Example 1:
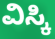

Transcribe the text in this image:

ವಿಸ್ಕಿ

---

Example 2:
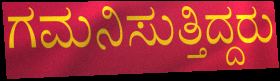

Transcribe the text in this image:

ಗಮನಿಸುತ್ತಿದ್ದರು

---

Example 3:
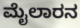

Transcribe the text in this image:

ಮೈಲಾರನ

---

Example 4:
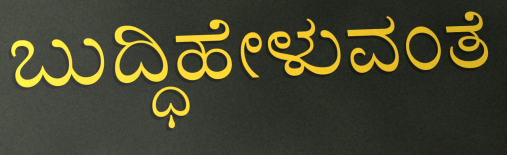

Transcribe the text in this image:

ಬುದ್ಧಿಹೇಳುವಂತೆ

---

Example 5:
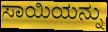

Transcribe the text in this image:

ಸಾಯಿಯನ್ನು